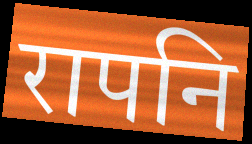
रापनि